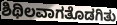
ಶಿಥಿಲವಾಗತೊಡಗಿತು